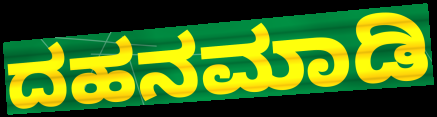
ದಹನಮಾಡಿ